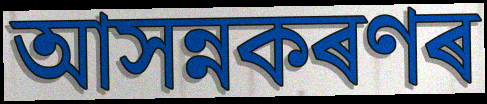
আসন্নকৰণৰ